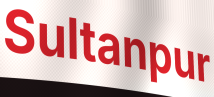
Sultanpur